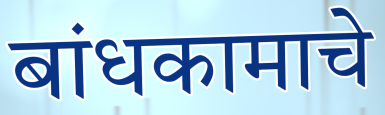
बांधकामाचे